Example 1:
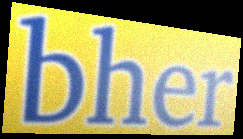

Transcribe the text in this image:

bher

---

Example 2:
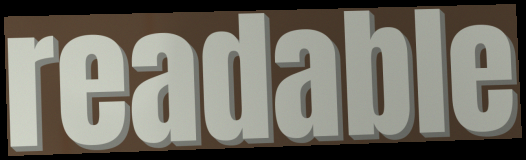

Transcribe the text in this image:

readable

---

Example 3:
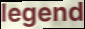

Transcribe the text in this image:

legend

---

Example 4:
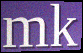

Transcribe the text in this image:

mk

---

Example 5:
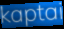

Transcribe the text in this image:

kaptai